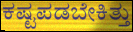
ಕಷ್ಟಪಡಬೇಕಿತ್ತು